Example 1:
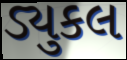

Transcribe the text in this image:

ડ્યુકલ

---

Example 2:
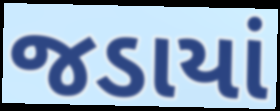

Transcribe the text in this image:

જડાયાં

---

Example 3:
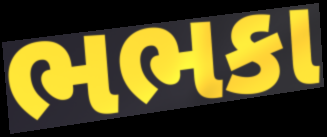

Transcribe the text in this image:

ભભકા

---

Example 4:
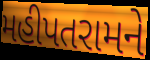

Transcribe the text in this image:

મહીપતરામને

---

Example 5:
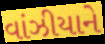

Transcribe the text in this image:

વાંઝીયાને